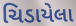
ચિડાયેલા